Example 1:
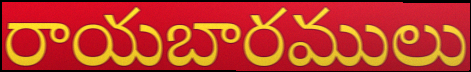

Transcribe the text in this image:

రాయబారములు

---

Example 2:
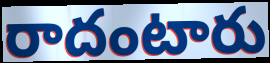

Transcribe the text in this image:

రాదంటారు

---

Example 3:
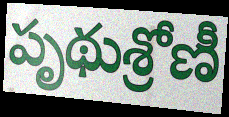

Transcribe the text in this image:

పృథుశ్రోణీ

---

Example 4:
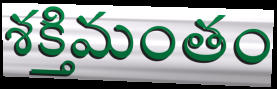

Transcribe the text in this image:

శక్తిమంతం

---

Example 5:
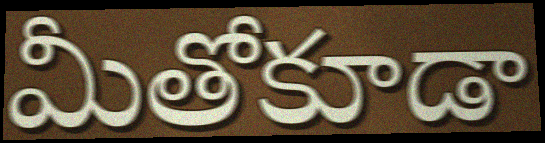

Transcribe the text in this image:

మీతోకూడా